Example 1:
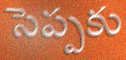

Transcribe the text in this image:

సెప్పకు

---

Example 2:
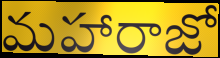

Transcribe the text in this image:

మహారాజో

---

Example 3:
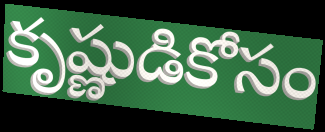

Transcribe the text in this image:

కృష్ణుడికోసం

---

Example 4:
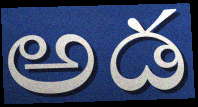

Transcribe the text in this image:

అడ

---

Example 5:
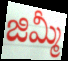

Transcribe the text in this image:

జిమ్మీ